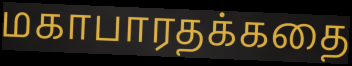
மகாபாரதக்கதை